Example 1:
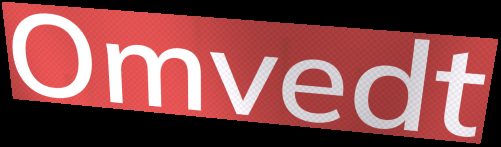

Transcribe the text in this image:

Omvedt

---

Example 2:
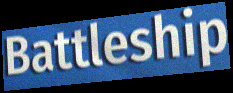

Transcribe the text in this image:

Battleship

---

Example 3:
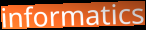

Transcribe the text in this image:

informatics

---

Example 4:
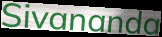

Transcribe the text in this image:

Sivananda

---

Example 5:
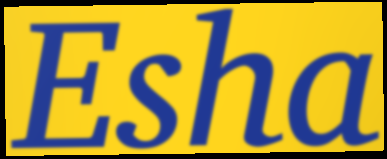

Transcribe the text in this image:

Esha